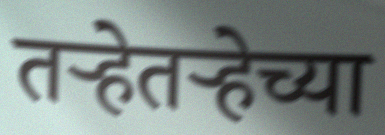
तर्‍हेतर्‍हेच्या